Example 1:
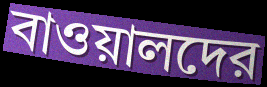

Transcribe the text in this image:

বাওয়ালদের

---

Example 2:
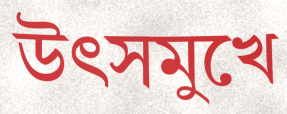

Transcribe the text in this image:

উৎসমুখে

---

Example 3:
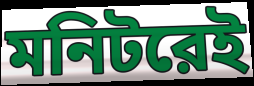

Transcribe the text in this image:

মনিটরেই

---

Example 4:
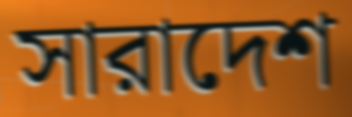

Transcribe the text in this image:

সারাদেশ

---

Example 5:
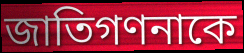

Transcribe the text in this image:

জাতিগণনাকে